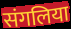
संगलिया